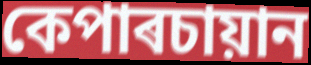
কেপাৰচায়ান